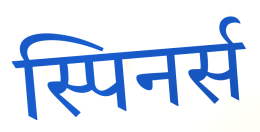
स्पिनर्स